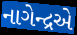
નાગેન્દ્રએ